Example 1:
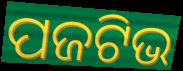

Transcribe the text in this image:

ପଜଟିଭ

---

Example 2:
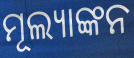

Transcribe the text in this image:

ମୂଲ୍ୟାଙ୍କନ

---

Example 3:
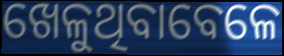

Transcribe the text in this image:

ଖେଳୁଥିବାବେଳେ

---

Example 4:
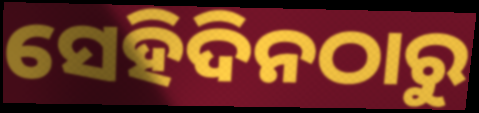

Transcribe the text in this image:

ସେହିଦିନଠାରୁ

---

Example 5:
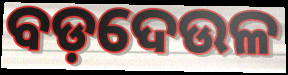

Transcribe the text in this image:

ବଡ଼ଦେଉଳ